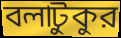
বলাটুকুর